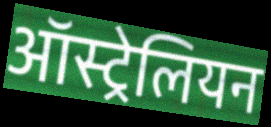
ऑस्ट्रेलियन